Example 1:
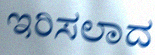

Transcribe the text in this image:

ಇರಿಸಲಾದ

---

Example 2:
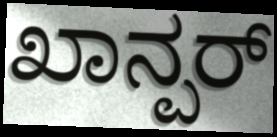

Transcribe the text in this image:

ಖಾನ್ಪರ್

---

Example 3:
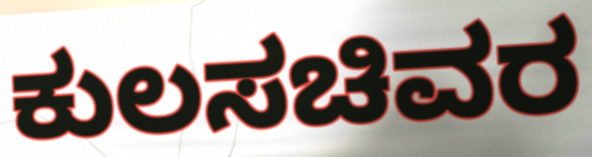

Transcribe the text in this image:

ಕುಲಸಚಿವರ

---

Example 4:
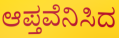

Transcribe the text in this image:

ಆಪ್ತವೆನಿಸಿದ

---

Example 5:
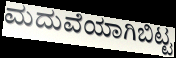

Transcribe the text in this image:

ಮದುವೆಯಾಗಿಬಿಟ್ಟ